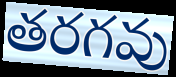
తరగవు